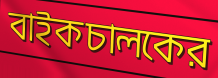
বাইকচালকের